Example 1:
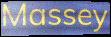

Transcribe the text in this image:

Massey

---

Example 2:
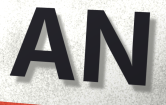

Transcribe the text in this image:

AN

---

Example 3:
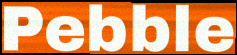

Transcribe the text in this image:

Pebble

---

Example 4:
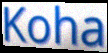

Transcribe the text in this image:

Koha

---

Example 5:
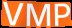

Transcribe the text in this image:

VMP